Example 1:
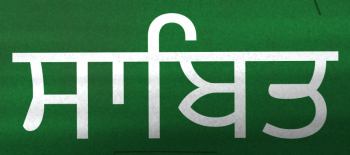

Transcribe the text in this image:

ਸਾਬਿਤ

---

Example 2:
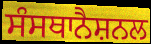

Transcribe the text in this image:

ਸੰਸਥਾਨੈਸ਼ਨਲ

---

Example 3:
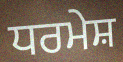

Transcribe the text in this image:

ਧਰਮੇਸ਼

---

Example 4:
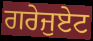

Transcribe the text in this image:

ਗਰੇਜੁਏਟ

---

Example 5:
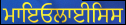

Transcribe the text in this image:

ਮਾਇਓਲਾਈਸਿਸ